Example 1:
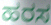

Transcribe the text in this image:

ಹರಸ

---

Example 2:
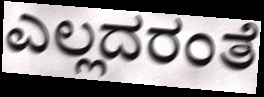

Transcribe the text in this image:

ಎಲ್ಲದರಂತೆ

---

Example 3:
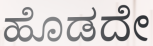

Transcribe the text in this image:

ಹೊಡದೇ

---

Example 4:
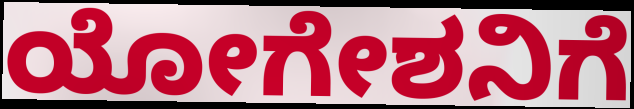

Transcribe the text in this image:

ಯೋಗೇಶನಿಗೆ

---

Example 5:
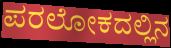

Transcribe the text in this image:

ಪರಲೋಕದಲ್ಲಿನ